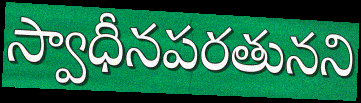
స్వాధీనపరతునని